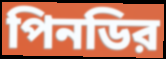
পিনডির